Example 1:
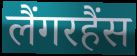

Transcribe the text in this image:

लैंगरहैंस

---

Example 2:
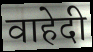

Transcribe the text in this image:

वाहेदी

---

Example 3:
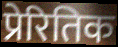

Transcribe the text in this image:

प्रेरितिक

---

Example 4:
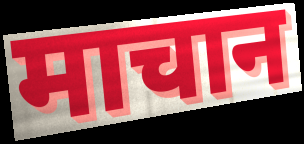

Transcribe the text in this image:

माचान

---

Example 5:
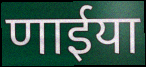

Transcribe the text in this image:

णाईया